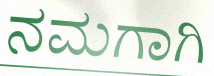
ನಮಗಾಗಿ